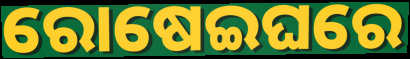
ରୋଷେଇଘରେ